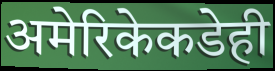
अमेरिकेकडेही